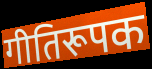
गीतिरूपक